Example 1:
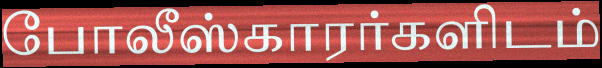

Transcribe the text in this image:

போலீஸ்காரர்களிடம்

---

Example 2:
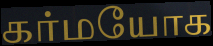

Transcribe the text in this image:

கர்மயோக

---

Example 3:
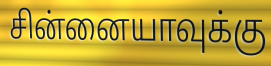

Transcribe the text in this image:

சின்னையாவுக்கு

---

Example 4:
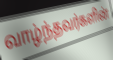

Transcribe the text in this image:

வாழ்ந்தவர்களின்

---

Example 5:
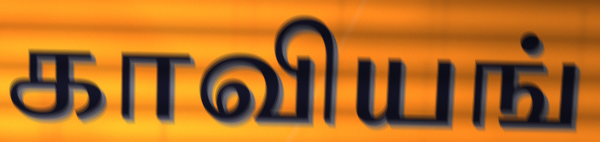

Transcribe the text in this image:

காவியங்